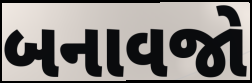
બનાવજો